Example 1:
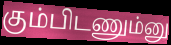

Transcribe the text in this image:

கும்பிடணும்னு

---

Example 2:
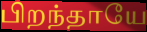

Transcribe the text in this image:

பிறந்தாயே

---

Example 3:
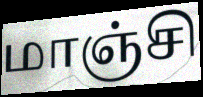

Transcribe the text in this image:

மாஞ்சி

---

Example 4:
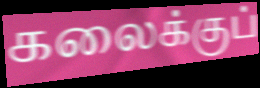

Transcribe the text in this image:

கலைக்குப்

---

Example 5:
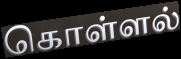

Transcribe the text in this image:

கொள்ளல்